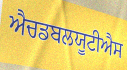
ਐਚਡਬਲਯੂਟੀਐਸ